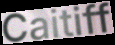
Caitiff